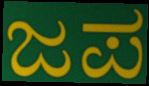
ಜಪ